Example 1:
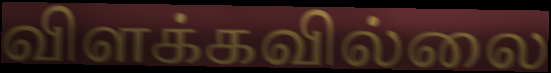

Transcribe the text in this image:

விளக்கவில்லை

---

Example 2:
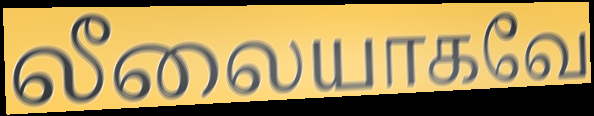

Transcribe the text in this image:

லீலையாகவே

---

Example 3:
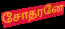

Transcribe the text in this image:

சோதரனே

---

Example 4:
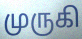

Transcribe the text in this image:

முருகி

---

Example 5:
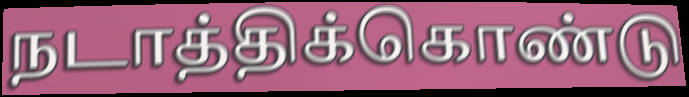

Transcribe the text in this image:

நடாத்திக்கொண்டு